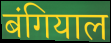
बंगियाल